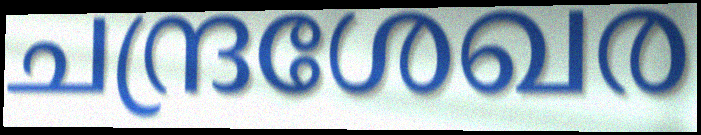
ചന്ദ്രശേഖര